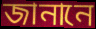
জানানে